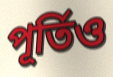
পূর্তিও